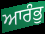
ਆਰੰਭੁ